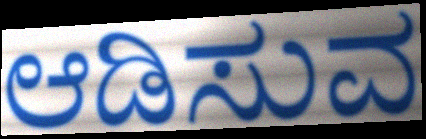
ಆಡಿಸುವ